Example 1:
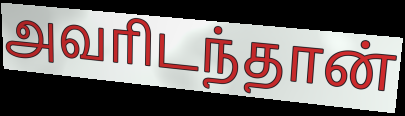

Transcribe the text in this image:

அவரிடந்தான்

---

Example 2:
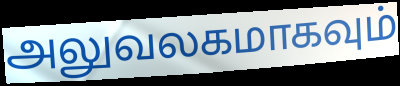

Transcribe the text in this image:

அலுவலகமாகவும்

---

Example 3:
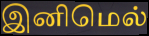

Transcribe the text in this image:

இனிமெல்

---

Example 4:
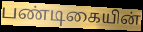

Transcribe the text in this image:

பண்டிகையின்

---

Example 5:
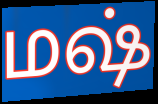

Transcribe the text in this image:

மஷ்